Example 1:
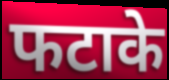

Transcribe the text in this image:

फटाके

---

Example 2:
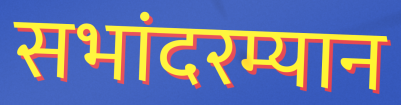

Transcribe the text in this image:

सभांदरम्यान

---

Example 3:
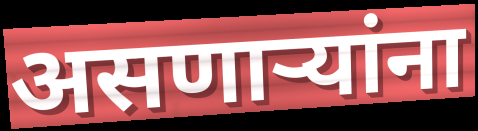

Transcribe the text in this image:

असणाऱ्यांना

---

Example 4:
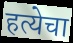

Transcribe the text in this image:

हत्येचा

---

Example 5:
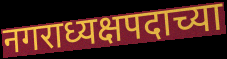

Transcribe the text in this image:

नगराध्यक्षपदाच्या